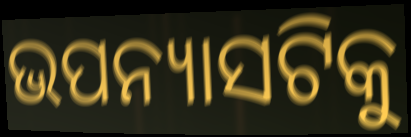
ଭପନ୍ୟାସଟିକୁ